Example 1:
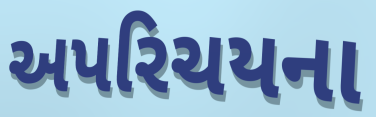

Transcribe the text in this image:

અપરિચયના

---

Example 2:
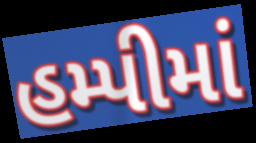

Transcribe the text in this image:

હમ્પીમાં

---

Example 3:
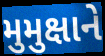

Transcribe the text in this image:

મુમુક્ષાને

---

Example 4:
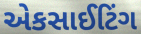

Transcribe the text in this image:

એકસાઈટિંગ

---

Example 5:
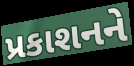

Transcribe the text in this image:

પ્રકાશનને